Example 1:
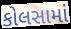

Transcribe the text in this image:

કોલસામાં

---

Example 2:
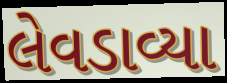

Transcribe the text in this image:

લેવડાવ્યા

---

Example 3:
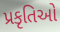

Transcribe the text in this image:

પ્રકૃતિઓ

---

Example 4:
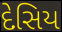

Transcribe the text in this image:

દેસિય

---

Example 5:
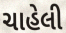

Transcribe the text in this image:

ચાહેલી